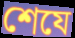
শেযে